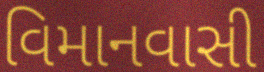
વિમાનવાસી